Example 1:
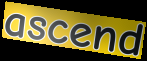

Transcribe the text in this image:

ascend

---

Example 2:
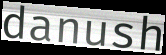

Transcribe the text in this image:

danush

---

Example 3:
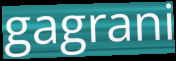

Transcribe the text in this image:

gagrani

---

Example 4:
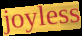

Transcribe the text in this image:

joyless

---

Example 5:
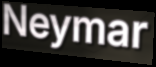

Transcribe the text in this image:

Neymar